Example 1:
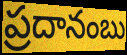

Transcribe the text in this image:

ప్రదానంబు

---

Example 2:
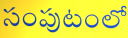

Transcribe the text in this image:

సంపుటంలో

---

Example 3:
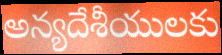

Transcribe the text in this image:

అన్యదేశీయులకు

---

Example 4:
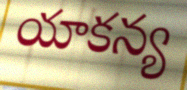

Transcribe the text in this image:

యాకన్య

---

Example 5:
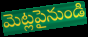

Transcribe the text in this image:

మెట్లపైనుండి